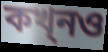
কখ্নও